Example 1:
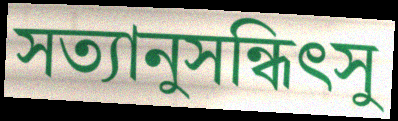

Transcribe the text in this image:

সত্যানুসন্ধিৎসু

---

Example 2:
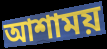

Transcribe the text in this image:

আশাময়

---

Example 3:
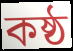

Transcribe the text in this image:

কষ্ঠ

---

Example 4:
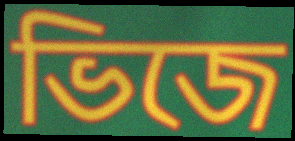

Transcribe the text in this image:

ভিজে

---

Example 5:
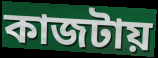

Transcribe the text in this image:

কাজটায়